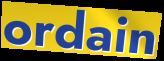
ordain